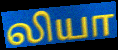
லியா